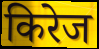
किरेज